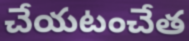
చేయటంచేత